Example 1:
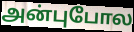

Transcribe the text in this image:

அன்புபோல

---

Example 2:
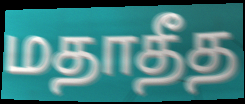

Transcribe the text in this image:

மதாதீத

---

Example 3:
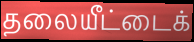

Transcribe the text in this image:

தலையீட்டைக்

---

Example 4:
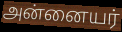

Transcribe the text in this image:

அன்னையர்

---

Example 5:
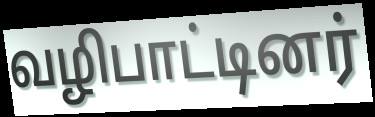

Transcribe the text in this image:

வழிபாட்டினர்